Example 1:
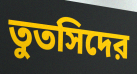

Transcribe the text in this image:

তুতসিদের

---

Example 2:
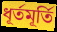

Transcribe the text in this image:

ধূর্তমূর্তি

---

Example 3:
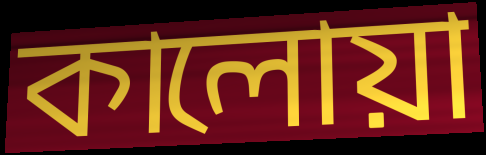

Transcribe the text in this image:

কালোয়া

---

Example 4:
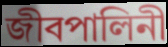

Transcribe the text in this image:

জীবপালিনী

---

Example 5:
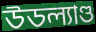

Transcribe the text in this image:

উডল্যাণ্ড